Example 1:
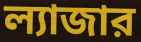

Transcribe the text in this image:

ল্যাজার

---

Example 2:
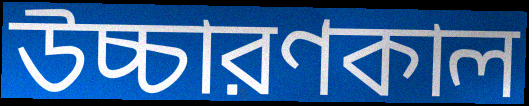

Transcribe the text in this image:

উচ্চারণকাল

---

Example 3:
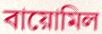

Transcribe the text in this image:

বায়োমিল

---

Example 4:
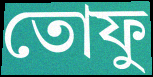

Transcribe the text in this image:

তোফু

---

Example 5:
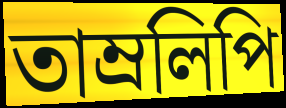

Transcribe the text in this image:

তাম্রলিপি